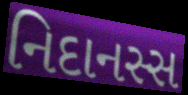
નિદાનસ્સ